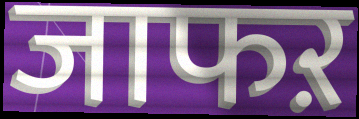
जाफऱ